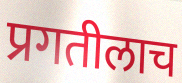
प्रगतीलाच